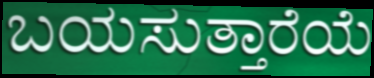
ಬಯಸುತ್ತಾರೆಯೆ